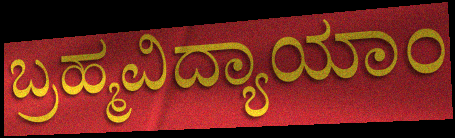
ಬ್ರಹ್ಮವಿದ್ಯಾಯಾಂ